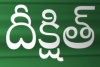
దీక్షిత్